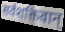
सर्वशक्तिवान्